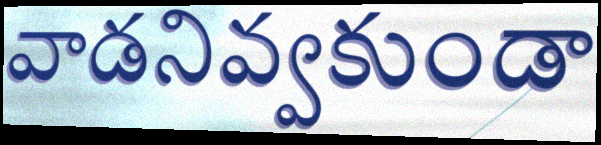
వాడనివ్వకుండా